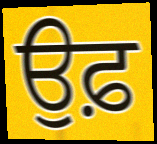
ਉਫ਼